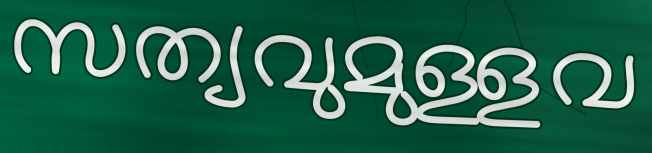
സത്യവുമുള്ളവ